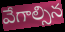
వేగాల్సిన